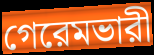
গেরেমভারী